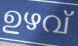
ഉഴവ്